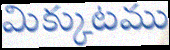
మిక్కుటము